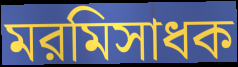
মরমিসাধক